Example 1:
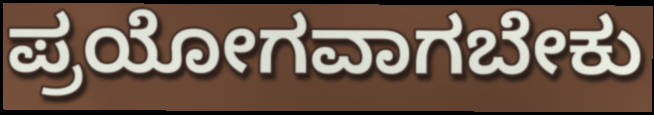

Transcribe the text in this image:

ಪ್ರಯೋಗವಾಗಬೇಕು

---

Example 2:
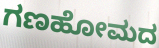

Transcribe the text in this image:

ಗಣಹೋಮದ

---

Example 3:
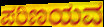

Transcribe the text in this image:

ಪರಿಣಯವ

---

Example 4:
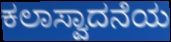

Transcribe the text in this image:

ಕಲಾಸ್ವಾದನೆಯ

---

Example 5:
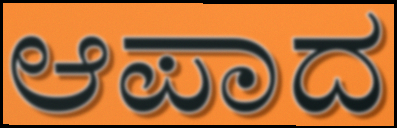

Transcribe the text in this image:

ಆಪಾದ